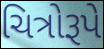
ચિત્રોરૂપે